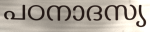
പഠനാദസ്യ